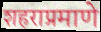
शहराप्रमाणे